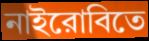
নাইরোবিতে